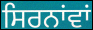
ਸਿਰਨਾਂਵਾਂ